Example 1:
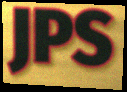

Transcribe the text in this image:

JPS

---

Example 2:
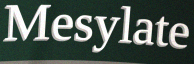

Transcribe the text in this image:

Mesylate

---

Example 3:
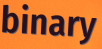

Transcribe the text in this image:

binary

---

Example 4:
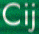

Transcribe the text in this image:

Cij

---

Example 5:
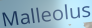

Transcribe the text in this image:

Malleolus